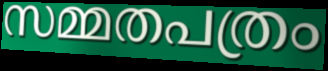
സമ്മതപത്രം